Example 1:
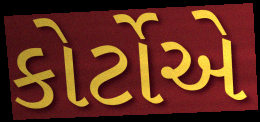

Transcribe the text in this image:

કોર્ટોએ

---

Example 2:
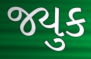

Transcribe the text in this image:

જ્યુક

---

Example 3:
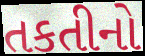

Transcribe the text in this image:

તકતીનો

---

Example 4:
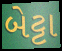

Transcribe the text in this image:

બેટ્ટા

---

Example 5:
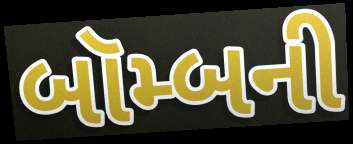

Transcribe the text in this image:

બૉમ્બની